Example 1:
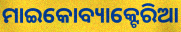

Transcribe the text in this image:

ମାଇକୋବ୍ୟାକ୍ଟେରିଆ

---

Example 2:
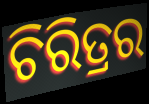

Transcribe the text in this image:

ଚିରିତ୍ରର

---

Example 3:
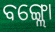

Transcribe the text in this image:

ବଙ୍ଗ୍ଲୋ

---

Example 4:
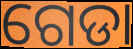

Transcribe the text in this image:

ଗେଡା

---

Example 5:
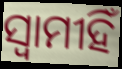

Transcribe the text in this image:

ସ୍ଵାମୀହିଁ